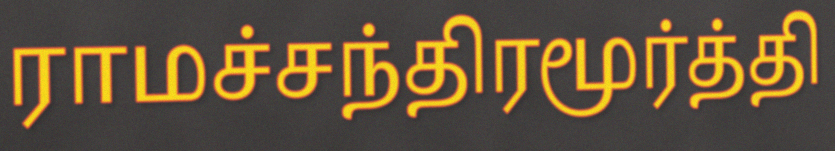
ராமச்சந்திரமூர்த்தி